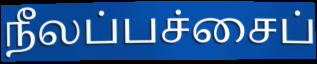
நீலப்பச்சைப்